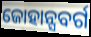
ଜୋହାନ୍ସବର୍ଗ